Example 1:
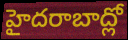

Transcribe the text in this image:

హైదరాబాద్లో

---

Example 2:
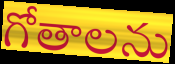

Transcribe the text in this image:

గోతాలను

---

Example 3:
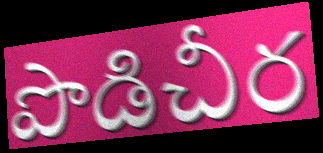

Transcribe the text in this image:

పొడిచీర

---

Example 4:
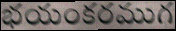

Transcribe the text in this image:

భయంకరముగ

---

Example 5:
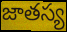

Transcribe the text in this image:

జాతస్య